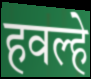
हवल्हे